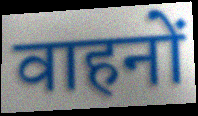
वाहनों